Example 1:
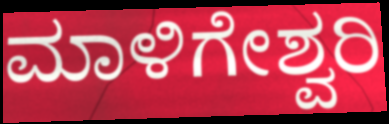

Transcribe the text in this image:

ಮಾಳಿಗೇಶ್ವರಿ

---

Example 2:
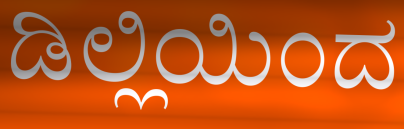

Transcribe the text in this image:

ಡಿಲ್ಲಿಯಿಂದ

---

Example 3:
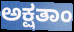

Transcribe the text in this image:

ಅಕ್ಷತಾಂ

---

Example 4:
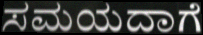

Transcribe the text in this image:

ಸಮಯದಾಗೆ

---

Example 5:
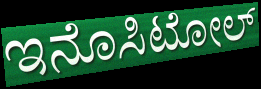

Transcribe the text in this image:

ಇನೊಸಿಟೋಲ್